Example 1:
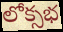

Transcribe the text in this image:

లోక్సభ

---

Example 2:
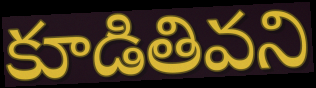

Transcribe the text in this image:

కూడితివని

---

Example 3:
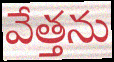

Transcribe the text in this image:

వేత్తను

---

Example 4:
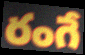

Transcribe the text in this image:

రంగే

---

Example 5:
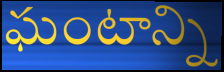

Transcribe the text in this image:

ఘంటాన్ని